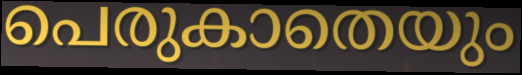
പെരുകാതെയും